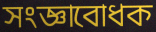
সংজ্ঞাবোধক